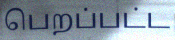
பெறப்பட்ட